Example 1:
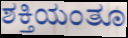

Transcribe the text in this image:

ಶಕ್ತಿಯಂತೂ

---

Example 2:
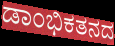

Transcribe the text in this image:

ಡಾಂಭಿಕತನದ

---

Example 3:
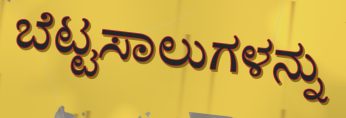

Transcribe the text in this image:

ಬೆಟ್ಟಸಾಲುಗಳನ್ನು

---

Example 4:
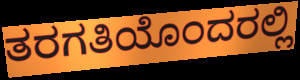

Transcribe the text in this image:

ತರಗತಿಯೊಂದರಲ್ಲಿ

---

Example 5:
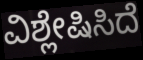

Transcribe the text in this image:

ವಿಶ್ಲೇಷಿಸಿದೆ